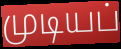
முடியப்